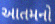
આતમનો